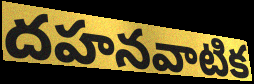
దహనవాటిక